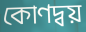
কোণদ্বয়